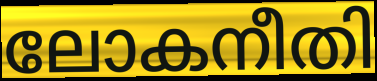
ലോകനീതി